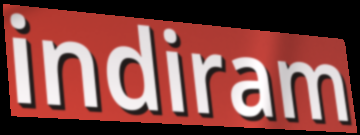
indiram